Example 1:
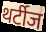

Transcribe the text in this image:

थर्टीज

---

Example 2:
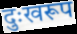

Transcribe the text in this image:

दुःखरूप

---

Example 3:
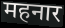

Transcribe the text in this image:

महनार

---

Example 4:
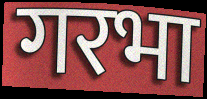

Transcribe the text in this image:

गरभा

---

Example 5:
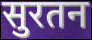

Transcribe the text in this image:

सुरतन